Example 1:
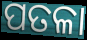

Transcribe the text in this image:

ପତଳା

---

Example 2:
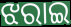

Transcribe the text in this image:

ଝରାଇ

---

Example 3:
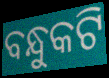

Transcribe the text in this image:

ବନ୍ଧୁକଟି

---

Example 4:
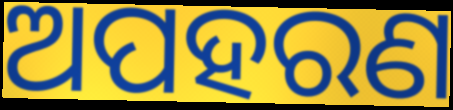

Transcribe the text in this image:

ଅପହରଣ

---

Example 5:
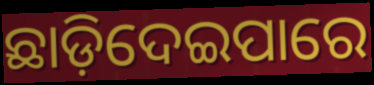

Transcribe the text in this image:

ଛାଡ଼ିଦେଇପାରେ